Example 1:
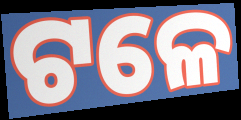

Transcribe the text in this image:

ଟଳେ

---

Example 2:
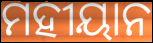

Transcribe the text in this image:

ମହୀୟାନ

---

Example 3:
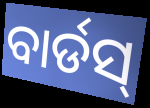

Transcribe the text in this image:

ବାର୍ଡସ୍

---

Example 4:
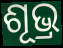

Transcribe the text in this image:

ଶୂଭ୍ର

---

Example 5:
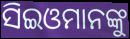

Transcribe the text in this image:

ସିଇଓମାନଙ୍କୁ